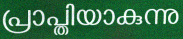
പ്രാപ്തിയാകുന്നു